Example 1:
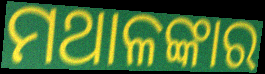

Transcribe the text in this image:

ମଥାଳଙ୍କାର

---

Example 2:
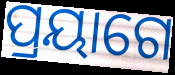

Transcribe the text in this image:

ପ୍ରୟାଗେ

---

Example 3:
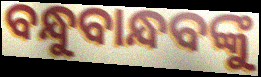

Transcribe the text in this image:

ବନ୍ଧୁବାନ୍ଧବଙ୍କୁ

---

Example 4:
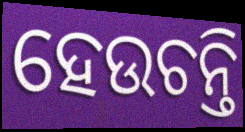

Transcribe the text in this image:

ହେଉଚନ୍ତି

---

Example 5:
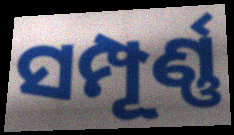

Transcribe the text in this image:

ସମ୍ପୂର୍ଣ୍ଣ